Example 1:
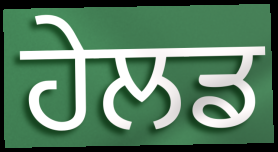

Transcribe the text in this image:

ਹੇਲਡ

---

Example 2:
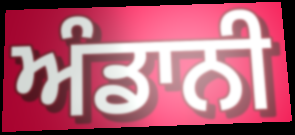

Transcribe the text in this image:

ਅੰਡਾਨੀ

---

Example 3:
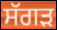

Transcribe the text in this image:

ਸੱਗੜ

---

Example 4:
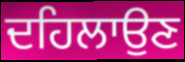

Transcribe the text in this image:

ਦਹਿਲਾਉਣ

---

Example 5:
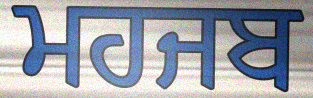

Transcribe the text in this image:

ਮਹਜਬ